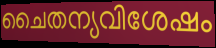
ചൈതന്യവിശേഷം